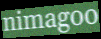
nimagoo